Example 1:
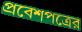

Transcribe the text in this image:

প্রবেশপত্রের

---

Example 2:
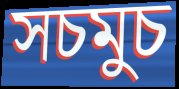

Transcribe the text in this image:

সচমুচ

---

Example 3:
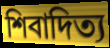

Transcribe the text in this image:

শিবাদিত্য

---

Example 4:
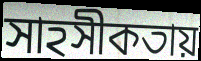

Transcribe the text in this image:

সাহসীকতায়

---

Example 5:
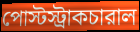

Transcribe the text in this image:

পোস্টস্ট্রাকচারাল